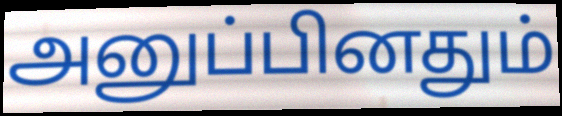
அனுப்பினதும்